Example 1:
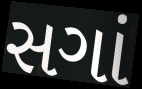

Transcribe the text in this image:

સગાં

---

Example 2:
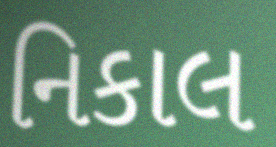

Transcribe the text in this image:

નિકાલ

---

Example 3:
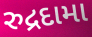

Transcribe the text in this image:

રુદ્રદામા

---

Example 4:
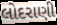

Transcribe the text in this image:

લોદરાણી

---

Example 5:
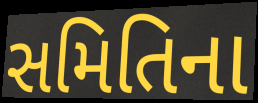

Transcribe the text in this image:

સમિતિના